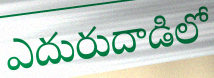
ఎదురుదాడిలో